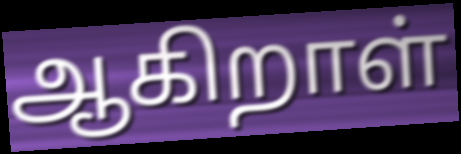
ஆகிறாள்